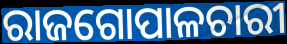
ରାଜଗୋପାଳଚାରୀ